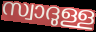
സ്വാദുള്ള